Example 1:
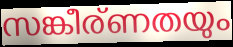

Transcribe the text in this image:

സങ്കീര്ണതയും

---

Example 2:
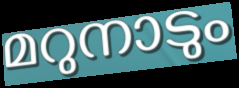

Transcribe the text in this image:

മറുനാടും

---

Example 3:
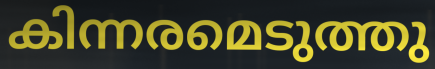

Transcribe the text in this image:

കിന്നരമെടുത്തു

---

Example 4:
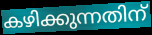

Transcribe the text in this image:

കഴിക്കുന്നതിന്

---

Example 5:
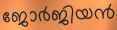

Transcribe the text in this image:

ജോർജിയൻ